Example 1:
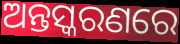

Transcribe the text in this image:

ଅନ୍ତସ୍କରଣରେ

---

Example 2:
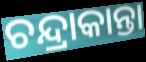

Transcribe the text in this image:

ଚନ୍ଦ୍ରାକାନ୍ତା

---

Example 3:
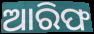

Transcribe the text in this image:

ଆରିଫ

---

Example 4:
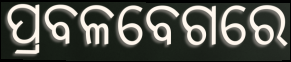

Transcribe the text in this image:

ପ୍ରବଳବେଗରେ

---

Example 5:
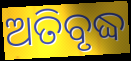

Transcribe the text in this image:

ଅତିବୃଦ୍ଧ